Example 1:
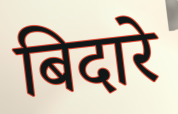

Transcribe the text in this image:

बिदारे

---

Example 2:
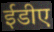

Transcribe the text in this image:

ईडीए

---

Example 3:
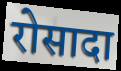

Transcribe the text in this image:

रोसादा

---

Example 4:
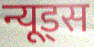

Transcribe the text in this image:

न्यूड्स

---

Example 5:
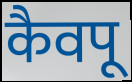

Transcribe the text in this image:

कैवपू